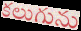
కలుగును